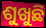
ଶୁଖୁଛି